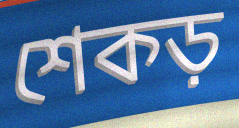
শেকড়